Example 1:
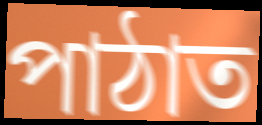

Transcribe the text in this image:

পাঠাত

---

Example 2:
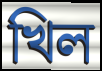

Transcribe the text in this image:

খিল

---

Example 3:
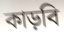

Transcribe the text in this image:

কাড়বি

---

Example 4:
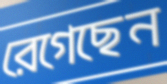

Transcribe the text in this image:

রেগেছেন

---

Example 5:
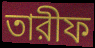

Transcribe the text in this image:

তারীফ